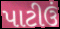
પાટીઉં